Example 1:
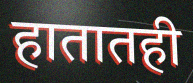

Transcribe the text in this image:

हातातही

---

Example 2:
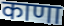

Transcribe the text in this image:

काणा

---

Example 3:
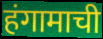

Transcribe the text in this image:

हंगामाची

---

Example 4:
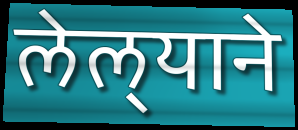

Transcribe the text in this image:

लेल्याने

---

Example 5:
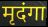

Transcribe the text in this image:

मृदंगा